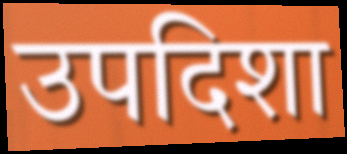
उपदिशा